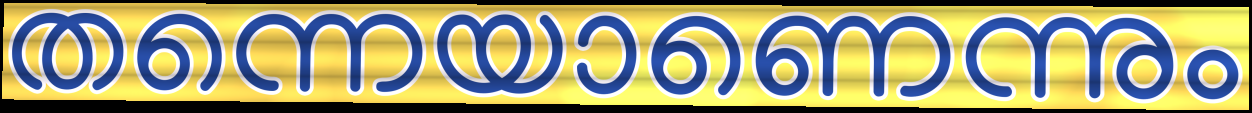
തന്നെയാണെന്നും